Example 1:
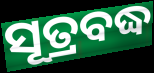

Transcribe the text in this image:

ସୂତ୍ରବଦ୍ଧ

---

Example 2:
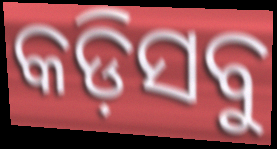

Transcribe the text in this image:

କଡ଼ିସବୁ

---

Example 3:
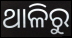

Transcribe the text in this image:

ଥାଳିରୁ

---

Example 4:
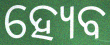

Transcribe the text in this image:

ହ୍ୟେବ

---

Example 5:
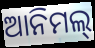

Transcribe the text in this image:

ଆନିମଲ୍